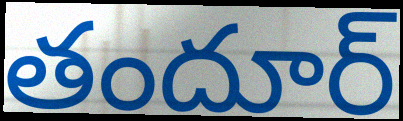
తందూర్